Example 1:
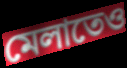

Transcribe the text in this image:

মেলাতেও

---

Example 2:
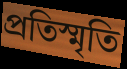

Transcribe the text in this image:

প্রতিস্মৃতি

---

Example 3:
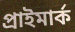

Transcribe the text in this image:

প্রাইমার্ক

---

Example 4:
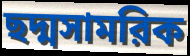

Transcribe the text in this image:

ছদ্মসামরিক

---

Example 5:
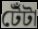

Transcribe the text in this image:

টেঁটা